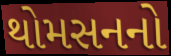
થોમસનનો